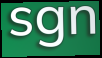
sgn